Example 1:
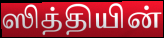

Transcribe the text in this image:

ஸித்தியின்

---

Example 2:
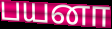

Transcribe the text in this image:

பயனா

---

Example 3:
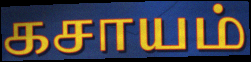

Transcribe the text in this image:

கசாயம்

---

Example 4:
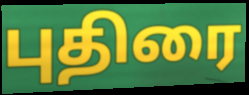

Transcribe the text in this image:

புதிரை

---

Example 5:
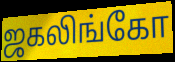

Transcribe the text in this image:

ஜகலிங்கோ